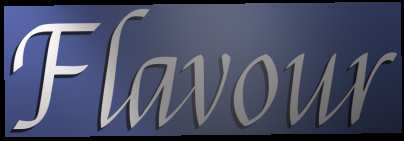
Flavour